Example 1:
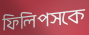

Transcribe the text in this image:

ফিলিপসকে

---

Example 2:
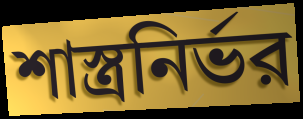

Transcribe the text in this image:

শাস্ত্রনির্ভর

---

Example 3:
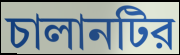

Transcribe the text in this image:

চালানটির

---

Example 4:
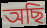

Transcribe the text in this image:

অছি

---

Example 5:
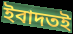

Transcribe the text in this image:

ইবাদতই